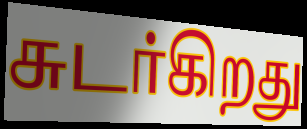
சுடர்கிறது